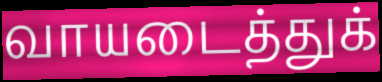
வாயடைத்துக்